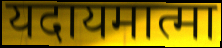
यदायमात्मा